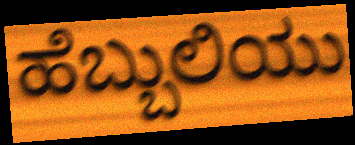
ಹೆಬ್ಬುಲಿಯು